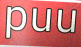
puu